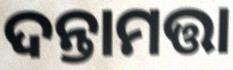
ଦନ୍ତାମତ୍ତା